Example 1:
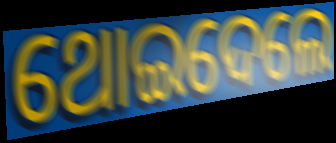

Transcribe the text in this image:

ଥୋଇଦେଲେ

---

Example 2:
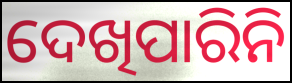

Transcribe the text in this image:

ଦେଖିପାରିନି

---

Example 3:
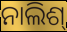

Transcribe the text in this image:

ନାଲିଶ୍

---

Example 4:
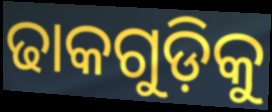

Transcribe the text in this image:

ଢାକଗୁଡ଼ିକୁ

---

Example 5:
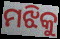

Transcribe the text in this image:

ମଝିକୁ